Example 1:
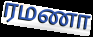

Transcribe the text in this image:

ரமணா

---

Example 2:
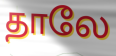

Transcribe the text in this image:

தாலே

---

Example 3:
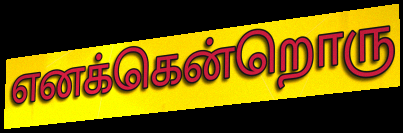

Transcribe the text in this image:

எனக்கென்றொரு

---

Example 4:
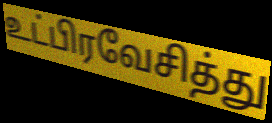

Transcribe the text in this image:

உட்பிரவேசித்து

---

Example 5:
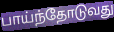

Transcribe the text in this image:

பாய்ந்தோடுவது